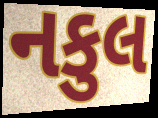
નકુલ